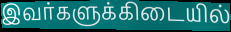
இவர்களுக்கிடையில்